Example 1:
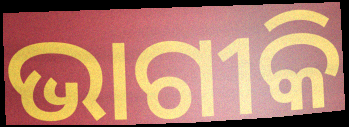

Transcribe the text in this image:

ଭାଗୀକି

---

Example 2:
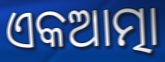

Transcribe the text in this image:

ଏକଆତ୍ମା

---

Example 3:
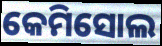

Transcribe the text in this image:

କେମିସୋଲ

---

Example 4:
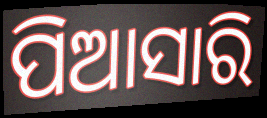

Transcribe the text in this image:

ପିଆସାରି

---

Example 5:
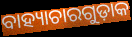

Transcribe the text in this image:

ବାହ୍ୟାଚାରଗୁଡ଼ାକ